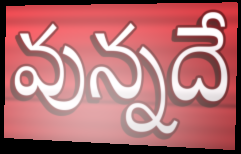
వున్నదే